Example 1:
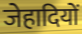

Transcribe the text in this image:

जेहादियों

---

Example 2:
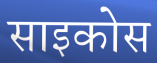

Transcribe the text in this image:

साइकोस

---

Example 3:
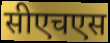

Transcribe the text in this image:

सीएचएस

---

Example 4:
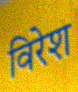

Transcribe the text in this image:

विरेश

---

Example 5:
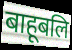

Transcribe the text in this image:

बाहूबलि